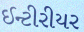
ઈન્ટીરીયર